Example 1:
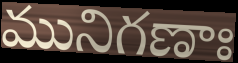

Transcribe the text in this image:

మునిగణాః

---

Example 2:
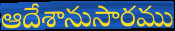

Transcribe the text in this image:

ఆదేశానుసారము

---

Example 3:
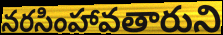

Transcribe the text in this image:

నరసింహావతారుని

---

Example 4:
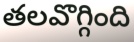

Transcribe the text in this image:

తలవొగ్గింది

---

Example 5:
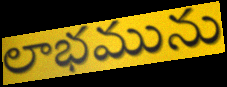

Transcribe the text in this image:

లాభమును